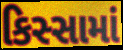
કિસ્સામાં